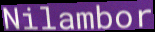
Nilambor